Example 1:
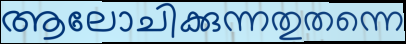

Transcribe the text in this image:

ആലോചിക്കുന്നതുതന്നെ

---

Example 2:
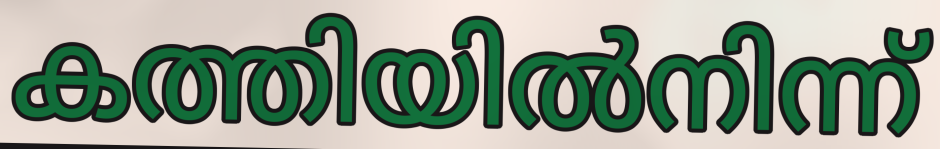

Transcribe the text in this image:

കത്തിയിൽനിന്ന്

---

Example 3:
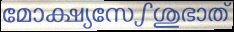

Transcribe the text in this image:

മോക്ഷ്യസേഽശുഭാത്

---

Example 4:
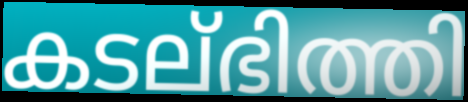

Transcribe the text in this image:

കടല്ഭിത്തി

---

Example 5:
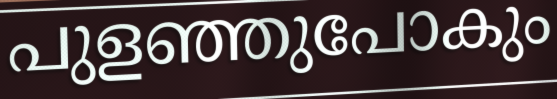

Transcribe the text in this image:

പുളഞ്ഞുപോകും